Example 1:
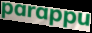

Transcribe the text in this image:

parappu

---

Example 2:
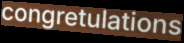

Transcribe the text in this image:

congretulations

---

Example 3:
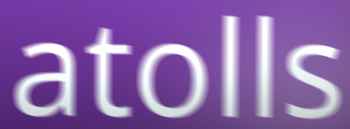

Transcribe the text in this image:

atolls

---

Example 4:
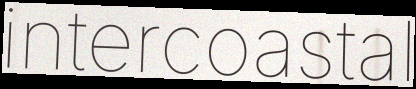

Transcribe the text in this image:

intercoastal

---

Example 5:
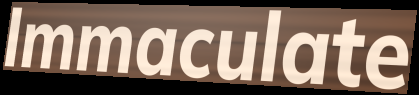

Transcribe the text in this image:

Immaculate